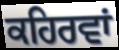
ਕਹਿਰਵਾਂ